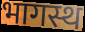
भागस्थ